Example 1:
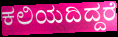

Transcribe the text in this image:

ಕಲಿಯದಿದ್ದರೆ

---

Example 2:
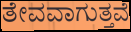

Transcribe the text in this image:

ತೇವವಾಗುತ್ತವೆ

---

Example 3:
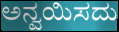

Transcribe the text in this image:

ಅನ್ವಯಿಸದು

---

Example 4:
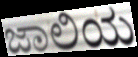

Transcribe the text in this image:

ಜಾಲಿಯ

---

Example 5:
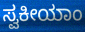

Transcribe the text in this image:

ಸ್ವಕೀಯಾಂ